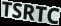
TSRTC